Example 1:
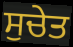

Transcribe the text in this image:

ਸੁਚੇਤ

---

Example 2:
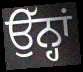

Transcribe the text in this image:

ਉੱਨ੍ਹਾਂ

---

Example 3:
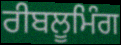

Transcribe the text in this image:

ਰੀਬਲੂਮਿੰਗ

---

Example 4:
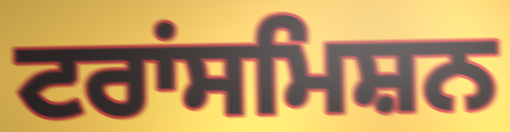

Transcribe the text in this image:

ਟਰਾਂਸਮਿਸ਼ਨ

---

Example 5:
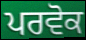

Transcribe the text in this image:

ਪਰਵੋਕ